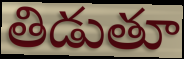
తిడుతూ